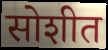
सोशीत